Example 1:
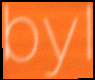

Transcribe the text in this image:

byl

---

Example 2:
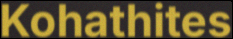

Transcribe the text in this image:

Kohathites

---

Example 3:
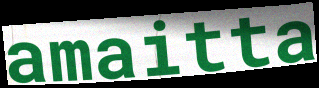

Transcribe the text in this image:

amaitta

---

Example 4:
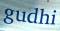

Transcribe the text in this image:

gudhi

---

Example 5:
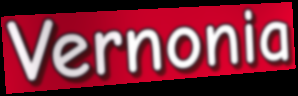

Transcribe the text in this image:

Vernonia